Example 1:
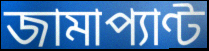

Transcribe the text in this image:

জামাপ্যাণ্ট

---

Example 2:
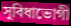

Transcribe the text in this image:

সুবিধাভোগী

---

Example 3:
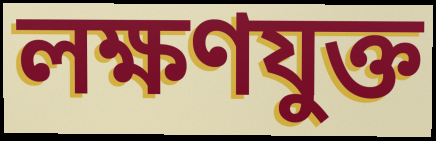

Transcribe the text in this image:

লক্ষণযুক্ত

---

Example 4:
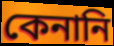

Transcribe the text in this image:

কেনানি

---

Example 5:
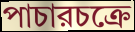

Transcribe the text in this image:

পাচারচক্রে